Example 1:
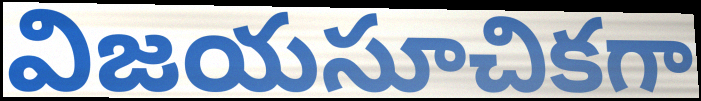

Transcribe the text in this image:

విజయసూచికగా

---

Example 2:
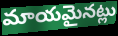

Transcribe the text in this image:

మాయమైనట్లు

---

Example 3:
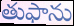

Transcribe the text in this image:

తుఫాను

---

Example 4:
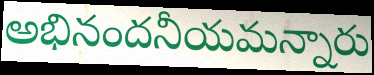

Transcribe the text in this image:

అభినందనీయమన్నారు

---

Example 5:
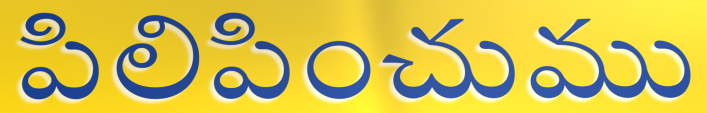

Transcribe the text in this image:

పిలిపించుము